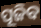
ପୂଜିବ